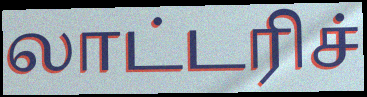
லாட்டரிச்